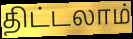
திட்டலாம்